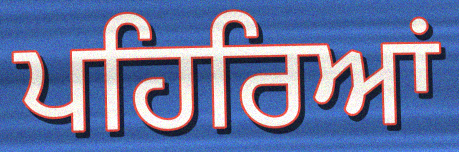
ਪਹਿਰਿਆਂ